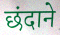
छंदाने